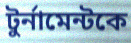
টুর্নামেন্টকে